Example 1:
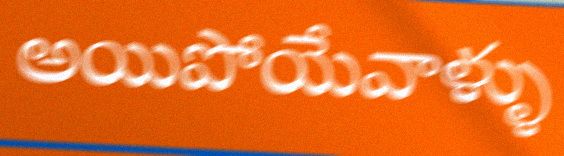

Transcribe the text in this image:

అయిపోయేవాళ్ళు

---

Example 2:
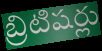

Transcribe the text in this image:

బ్రిటిషర్లు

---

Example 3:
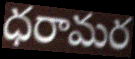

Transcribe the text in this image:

ధరామర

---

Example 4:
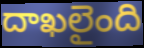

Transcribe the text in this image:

దాఖలైంది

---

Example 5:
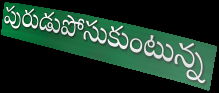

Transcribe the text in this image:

పురుడుపోసుకుంటున్న